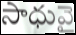
సాధువై